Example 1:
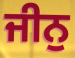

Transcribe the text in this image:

ਜੀਨੁ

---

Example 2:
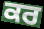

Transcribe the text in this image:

ਕਰ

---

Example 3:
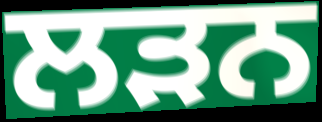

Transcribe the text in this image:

ਲਡ਼ਨ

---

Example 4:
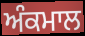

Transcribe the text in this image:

ਅੰਕਮਾਲ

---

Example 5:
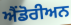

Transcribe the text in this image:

ਐਂਡੋਰੀਅਨ